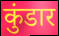
कुंडार